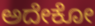
ಅದೇಕೋ